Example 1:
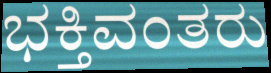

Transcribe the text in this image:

ಭಕ್ತಿವಂತರು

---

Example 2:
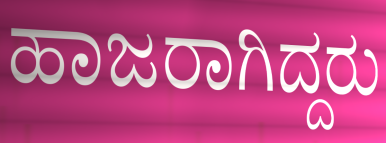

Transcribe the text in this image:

ಹಾಜರಾಗಿದ್ದರು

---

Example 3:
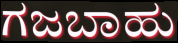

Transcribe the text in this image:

ಗಜಬಾಹು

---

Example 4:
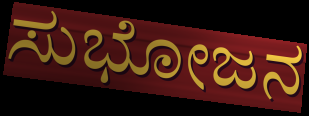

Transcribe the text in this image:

ಸುಭೋಜನ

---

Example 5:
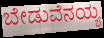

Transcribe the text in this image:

ಬೇಡುವೆನಯ್ಯ